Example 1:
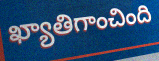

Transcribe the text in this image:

ఖ్యాతిగాంచింది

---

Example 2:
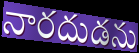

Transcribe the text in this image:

నారదుడను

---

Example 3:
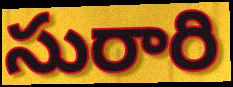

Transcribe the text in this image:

సురారి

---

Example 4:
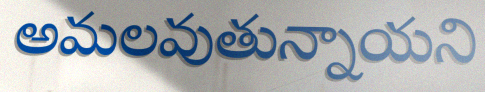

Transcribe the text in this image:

అమలవుతున్నాయని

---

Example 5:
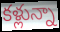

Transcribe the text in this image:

కళ్లున్నా